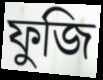
ফুজি